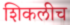
शिकलीच